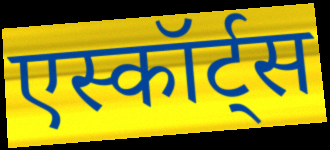
एस्कॉर्ट्स